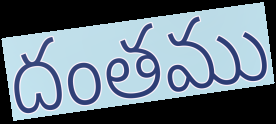
దంతము